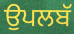
ਉਪਲਬੱ